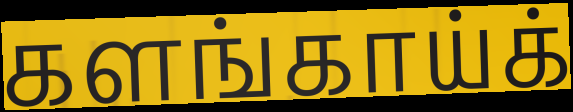
களங்காய்க்